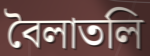
বৈলাতলি